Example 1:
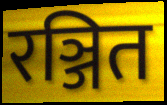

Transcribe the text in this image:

रञ्जित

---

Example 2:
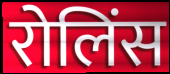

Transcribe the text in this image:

रोलिंस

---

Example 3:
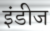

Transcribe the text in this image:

इंडीज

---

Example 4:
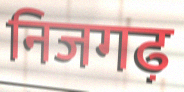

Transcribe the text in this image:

निजगढ़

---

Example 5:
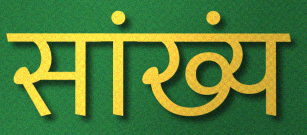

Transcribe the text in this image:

सांख्यं